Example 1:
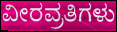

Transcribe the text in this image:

ವೀರವ್ರತಿಗಳು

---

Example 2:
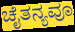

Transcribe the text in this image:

ಚೈತನ್ಯವೂ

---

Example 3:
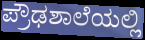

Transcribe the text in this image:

ಪ್ರೌಢಶಾಲೆಯಲ್ಲಿ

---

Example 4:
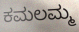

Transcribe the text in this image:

ಕಮಲಮ್ಮ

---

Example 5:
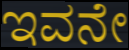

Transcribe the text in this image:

ಇವನೇ